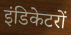
इंडिकेटरों